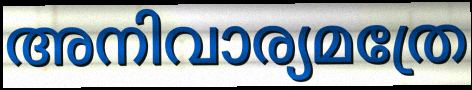
അനിവാര്യമത്രേ